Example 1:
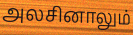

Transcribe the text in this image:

அலசினாலும்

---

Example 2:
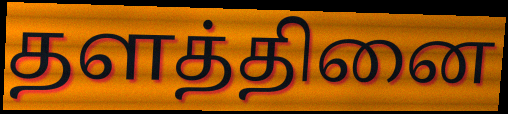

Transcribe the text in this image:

தளத்தினை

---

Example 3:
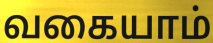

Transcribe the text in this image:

வகையாம்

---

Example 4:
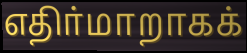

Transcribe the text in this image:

எதிர்மாறாகக்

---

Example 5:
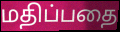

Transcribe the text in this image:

மதிப்பதை